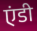
एंडी